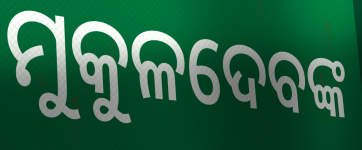
ମୁକୁଳଦେବଙ୍କ